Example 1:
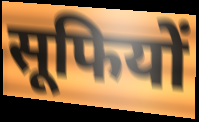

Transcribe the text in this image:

सूफियों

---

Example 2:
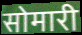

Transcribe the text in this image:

सोमारी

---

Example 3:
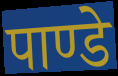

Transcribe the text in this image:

पाण्डे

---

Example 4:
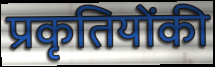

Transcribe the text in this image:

प्रकृतियोंकी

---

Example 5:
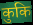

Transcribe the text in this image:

कुकि